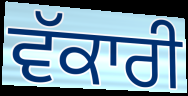
ਵੱਕਾਰੀ